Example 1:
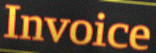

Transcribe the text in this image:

Invoice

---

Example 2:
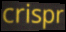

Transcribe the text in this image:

crispr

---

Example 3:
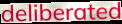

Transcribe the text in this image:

deliberated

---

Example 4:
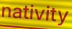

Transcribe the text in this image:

nativity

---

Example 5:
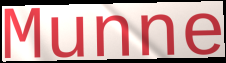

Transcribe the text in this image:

Munne